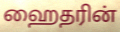
ஹைதரின்